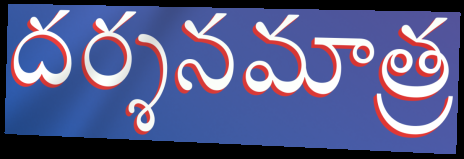
దర్శనమాత్ర